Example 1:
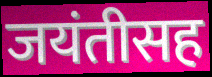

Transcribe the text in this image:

जयंतीसह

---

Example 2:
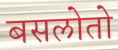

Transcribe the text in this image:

बसलोतो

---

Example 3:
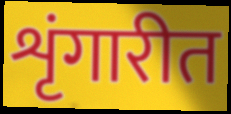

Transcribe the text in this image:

शृंगारीत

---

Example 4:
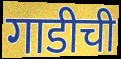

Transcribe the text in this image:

गाडीची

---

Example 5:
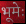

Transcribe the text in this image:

भूमेः